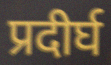
प्रदीर्घ